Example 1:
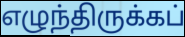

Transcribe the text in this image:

எழுந்திருக்கப்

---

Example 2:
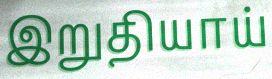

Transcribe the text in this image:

இறுதியாய்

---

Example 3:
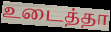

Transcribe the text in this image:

உடைத்தா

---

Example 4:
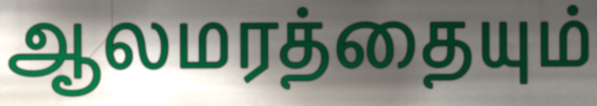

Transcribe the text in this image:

ஆலமரத்தையும்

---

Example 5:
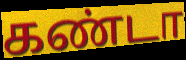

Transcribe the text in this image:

கண்டா